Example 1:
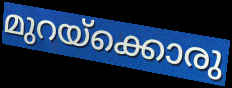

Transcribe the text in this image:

മുറയ്ക്കൊരു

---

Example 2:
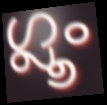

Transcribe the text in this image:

ഗ്ലൂം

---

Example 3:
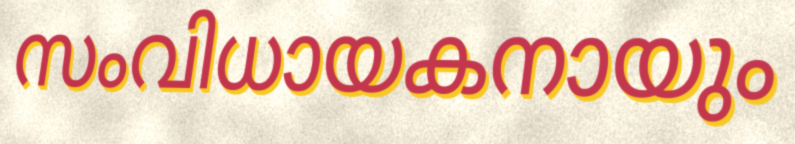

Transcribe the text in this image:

സംവിധായകനായും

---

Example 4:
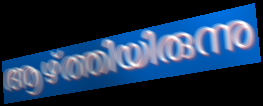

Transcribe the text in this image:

ആഴ്ത്തിയിരുന്നു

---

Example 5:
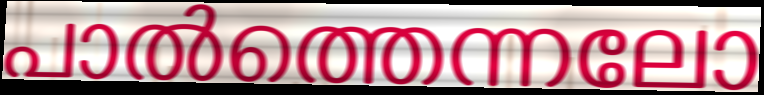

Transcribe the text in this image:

പാൽത്തെന്നലോ